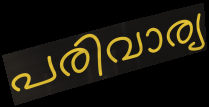
പരിവാര്യ